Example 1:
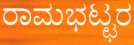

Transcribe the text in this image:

ರಾಮಭಟ್ಟರ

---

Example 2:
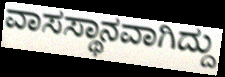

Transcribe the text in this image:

ವಾಸಸ್ಥಾನವಾಗಿದ್ದು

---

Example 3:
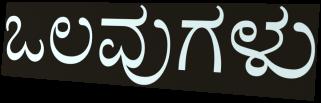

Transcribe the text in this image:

ಒಲವುಗಳು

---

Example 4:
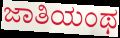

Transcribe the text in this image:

ಜಾತಿಯಂಥ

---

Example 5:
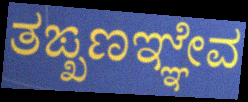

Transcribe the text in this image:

ತಙ್ಖಣಞ್ಞೇವ